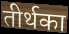
तीर्थका